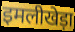
इमलीखेड़ा